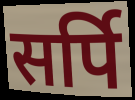
सर्पि